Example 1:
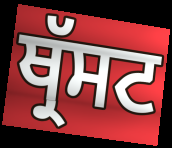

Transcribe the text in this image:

ਥ੍ਰੱਸਟ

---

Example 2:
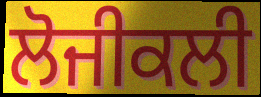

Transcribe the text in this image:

ਲੋਜੀਕਲੀ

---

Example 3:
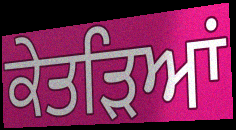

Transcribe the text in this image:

ਕੇਤੜਿਆਂ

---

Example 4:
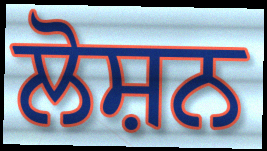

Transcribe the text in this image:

ਲੋਸ਼ਨ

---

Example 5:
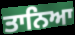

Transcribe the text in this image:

ਤਾਨਿਆ